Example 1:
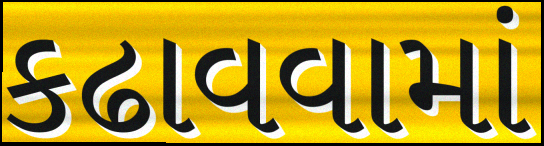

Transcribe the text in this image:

કઢાવવામાં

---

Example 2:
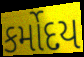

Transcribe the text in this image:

કર્મોદય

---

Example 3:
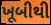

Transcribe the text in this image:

ખૂબીથી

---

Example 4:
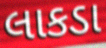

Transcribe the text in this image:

લાકડા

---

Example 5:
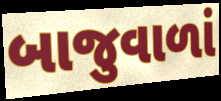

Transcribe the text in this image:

બાજુવાળાં